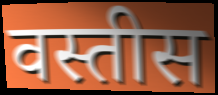
वस्तीस